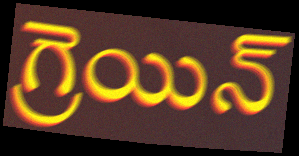
గ్రెయిన్